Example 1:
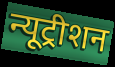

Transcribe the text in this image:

न्यूट्रीशन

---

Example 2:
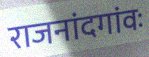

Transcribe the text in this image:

राजनांदगांवः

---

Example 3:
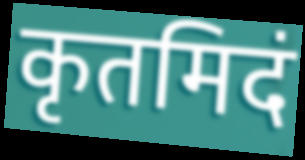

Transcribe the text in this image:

कृतमिदं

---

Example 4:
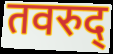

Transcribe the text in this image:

तवरुद्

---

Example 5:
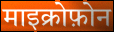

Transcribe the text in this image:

माइक्रोफ़ोन